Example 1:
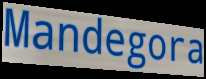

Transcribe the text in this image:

Mandegora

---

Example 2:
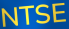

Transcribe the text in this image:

NTSE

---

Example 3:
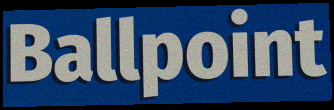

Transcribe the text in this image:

Ballpoint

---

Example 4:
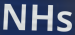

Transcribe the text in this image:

NHs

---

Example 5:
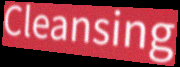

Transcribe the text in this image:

Cleansing